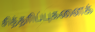
சித்தரிப்புகளைக்